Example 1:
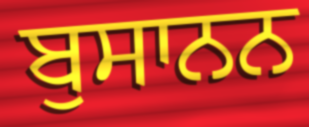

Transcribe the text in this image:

ਬੁਸਾਨਨ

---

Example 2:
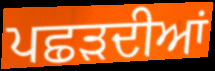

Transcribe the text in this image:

ਪਛੜਦੀਆਂ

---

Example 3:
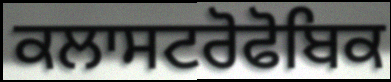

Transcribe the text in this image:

ਕਲਾਸਟਰੋਫੋਬਿਕ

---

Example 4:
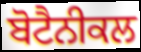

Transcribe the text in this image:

ਬੋਟੈਨੀਕਲ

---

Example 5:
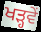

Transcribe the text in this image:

ਖੜ੍ਹਵੇਂ